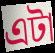
এটা